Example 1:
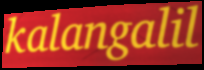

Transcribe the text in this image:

kalangalil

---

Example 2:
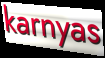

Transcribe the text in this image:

karnyas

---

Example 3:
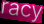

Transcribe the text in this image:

racy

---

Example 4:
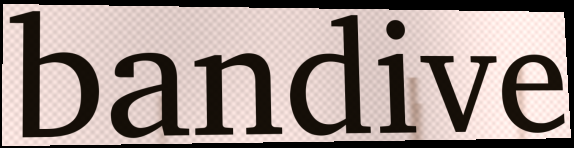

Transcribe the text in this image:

bandive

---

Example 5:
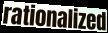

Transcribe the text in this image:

rationalized